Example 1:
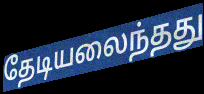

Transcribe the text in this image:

தேடியலைந்தது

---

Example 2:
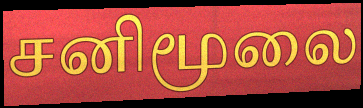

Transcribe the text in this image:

சனிமூலை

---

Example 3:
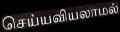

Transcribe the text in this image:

செய்யவியலாமல்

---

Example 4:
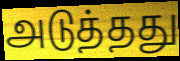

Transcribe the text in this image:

அடுத்தது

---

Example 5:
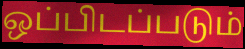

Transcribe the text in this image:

ஒப்பிடப்படும்